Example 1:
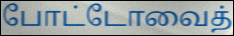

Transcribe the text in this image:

போட்டோவைத்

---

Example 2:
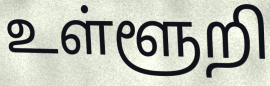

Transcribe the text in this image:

உள்ளூறி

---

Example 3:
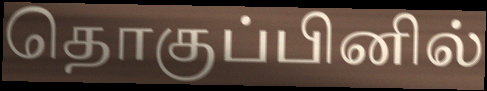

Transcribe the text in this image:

தொகுப்பினில்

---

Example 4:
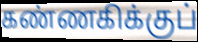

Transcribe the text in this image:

கண்ணகிக்குப்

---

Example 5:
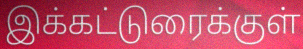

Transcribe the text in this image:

இக்கட்டுரைக்குள்